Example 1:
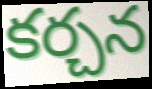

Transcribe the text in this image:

కర్చన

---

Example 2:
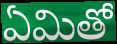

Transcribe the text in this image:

ఏమితో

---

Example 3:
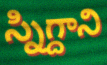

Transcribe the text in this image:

స్నిగ్దాని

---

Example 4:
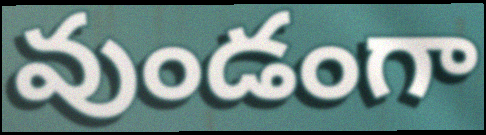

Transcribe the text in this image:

వుండంగా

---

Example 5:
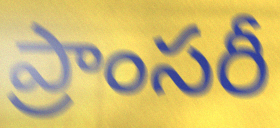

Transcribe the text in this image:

ప్రాంసరీ